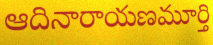
ఆదినారాయణమూర్తి